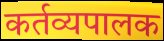
कर्तव्यपालक